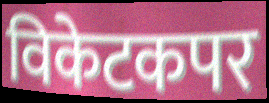
विकेटकपर